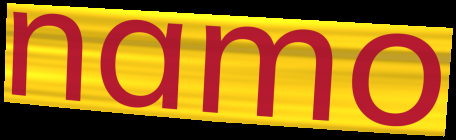
namo